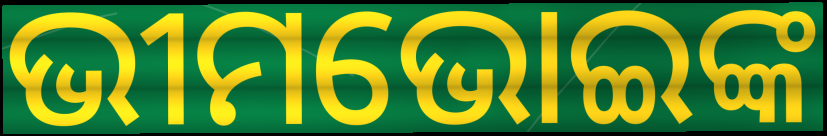
ଭୀମଭୋଇଙ୍କ